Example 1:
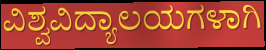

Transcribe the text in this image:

ವಿಶ್ವವಿದ್ಯಾಲಯಗಳಾಗಿ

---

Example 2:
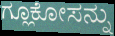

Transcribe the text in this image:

ಗ್ಲೂಕೋಸನ್ನು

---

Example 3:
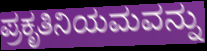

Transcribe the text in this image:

ಪ್ರಕೃತಿನಿಯಮವನ್ನು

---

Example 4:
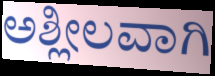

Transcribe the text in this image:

ಅಶ್ಲೀಲವಾಗಿ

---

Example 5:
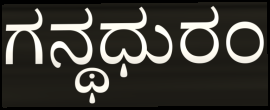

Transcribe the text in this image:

ಗನ್ಥಧುರಂ